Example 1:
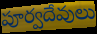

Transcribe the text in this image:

పూర్వదేవులు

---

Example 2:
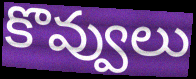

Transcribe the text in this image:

కొవ్వులు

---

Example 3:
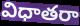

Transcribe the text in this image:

విధాతరా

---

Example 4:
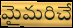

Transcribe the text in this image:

మైమరిచే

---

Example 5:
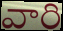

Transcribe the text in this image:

వారి